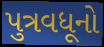
પુત્રવધૂનો